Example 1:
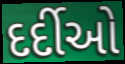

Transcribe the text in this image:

દર્દીઓ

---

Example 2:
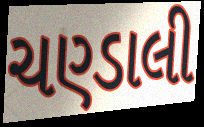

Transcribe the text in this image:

ચણ્ડાલી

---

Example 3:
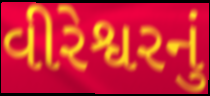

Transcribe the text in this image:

વીરેશ્વરનું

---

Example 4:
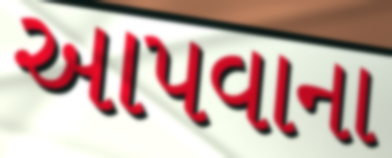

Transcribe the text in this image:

આપવાના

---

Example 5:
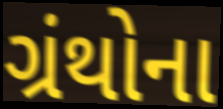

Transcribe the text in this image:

ગ્રંથોના